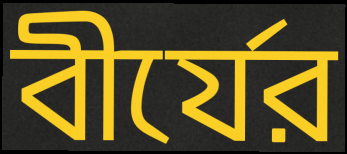
বীর্যের